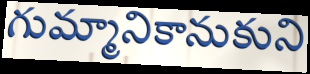
గుమ్మానికానుకుని